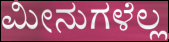
ಮೀನುಗಳೆಲ್ಲ